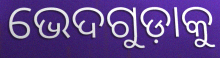
ଭେଦଗୁଡ଼ାକୁ